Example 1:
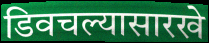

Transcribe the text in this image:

डिवचल्यासारखे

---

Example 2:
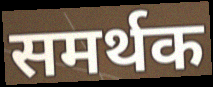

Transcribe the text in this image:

समर्थक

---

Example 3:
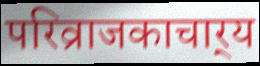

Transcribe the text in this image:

परिव्राजकाचार्य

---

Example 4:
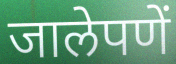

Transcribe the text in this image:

जालेपणें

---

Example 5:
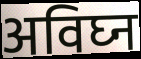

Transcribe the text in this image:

अविघ्न